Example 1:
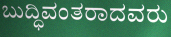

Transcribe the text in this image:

ಬುದ್ಧಿವಂತರಾದವರು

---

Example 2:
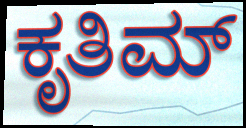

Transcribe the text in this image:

ಕೃತಿಮ್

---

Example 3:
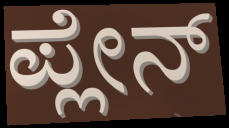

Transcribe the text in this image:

ಪ್ಲೇನ್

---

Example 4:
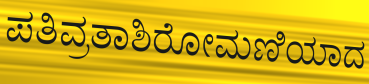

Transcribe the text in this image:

ಪತಿವ್ರತಾಶಿರೋಮಣಿಯಾದ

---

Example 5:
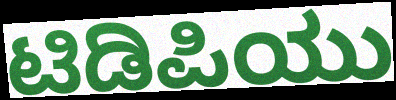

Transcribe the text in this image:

ಟಿಡಿಪಿಯು